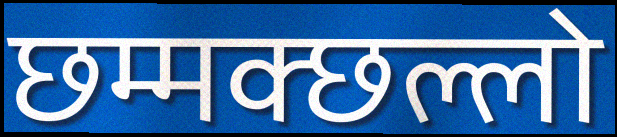
छम्मक्छल्लो